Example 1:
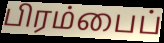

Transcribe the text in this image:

பிரம்பைப்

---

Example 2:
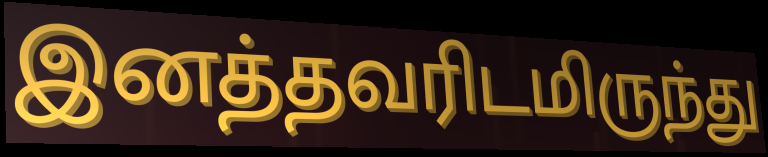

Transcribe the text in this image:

இனத்தவரிடமிருந்து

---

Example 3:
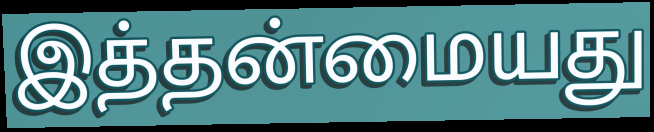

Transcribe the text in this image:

இத்தன்மையது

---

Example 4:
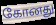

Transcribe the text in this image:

கோனது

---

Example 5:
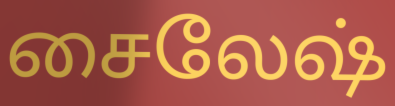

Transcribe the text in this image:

சைலேஷ்